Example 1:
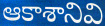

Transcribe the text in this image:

ఆకాశానివి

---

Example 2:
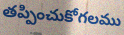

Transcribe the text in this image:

తప్పించుకోగలము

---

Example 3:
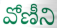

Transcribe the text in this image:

వోణీని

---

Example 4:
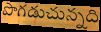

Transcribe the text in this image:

పొగడుచున్నది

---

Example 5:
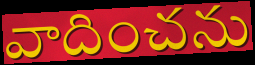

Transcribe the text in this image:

వాదించను